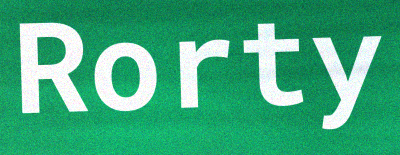
Rorty